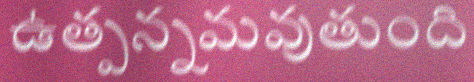
ఉత్పన్నమవుతుంది